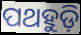
ପଥହୁଡ଼ି